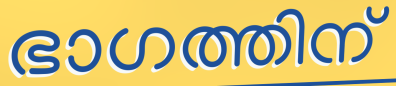
ഭാഗത്തിന്